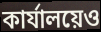
কার্যালয়েও